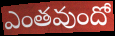
ఎంతవుందో